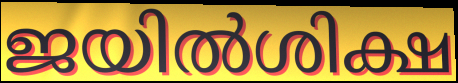
ജയിൽശിക്ഷ